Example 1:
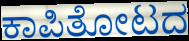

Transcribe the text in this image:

ಕಾಪಿತೋಟದ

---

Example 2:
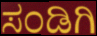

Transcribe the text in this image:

ಸಂಡಿಗಿ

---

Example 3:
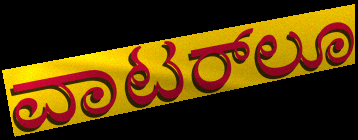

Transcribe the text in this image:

ವಾಟರ್‌ಲೂ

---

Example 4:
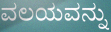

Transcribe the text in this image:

ವಲಯವನ್ನು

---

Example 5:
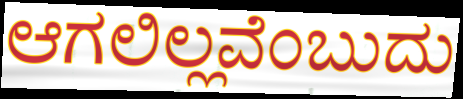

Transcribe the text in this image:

ಆಗಲಿಲ್ಲವೆಂಬುದು